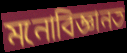
মনোবিজ্ঞানত